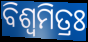
ବିଶ୍ବମିତ୍ରଃ